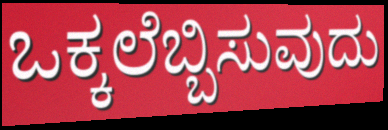
ಒಕ್ಕಲೆಬ್ಬಿಸುವುದು